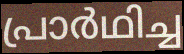
പ്രാർഥിച്ച